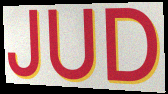
JUD